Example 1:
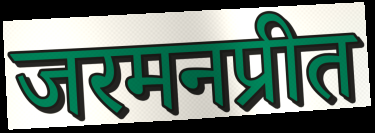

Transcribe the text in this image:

जरमनप्रीत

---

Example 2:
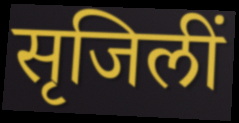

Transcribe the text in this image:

सृजिलीं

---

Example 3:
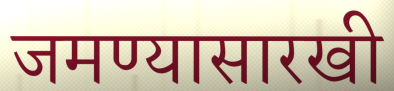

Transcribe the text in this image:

जमण्यासारखी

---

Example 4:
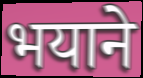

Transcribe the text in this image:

भयाने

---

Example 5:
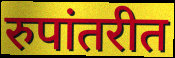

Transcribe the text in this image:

रुपांतरीत